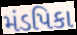
મંડપિકા